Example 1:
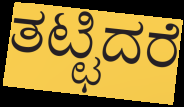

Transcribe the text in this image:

ತಟ್ಟಿದರೆ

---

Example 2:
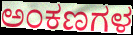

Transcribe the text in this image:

ಅಂಕಣಗಳ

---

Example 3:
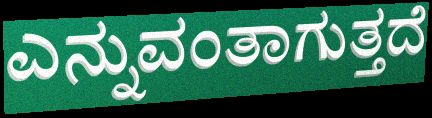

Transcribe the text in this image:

ಎನ್ನುವಂತಾಗುತ್ತದೆ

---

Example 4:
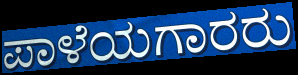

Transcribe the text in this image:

ಪಾಳೆಯಗಾರರು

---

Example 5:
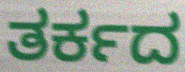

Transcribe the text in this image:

ತರ್ಕದ